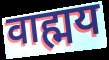
वाह्मय